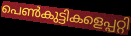
പെൺകുട്ടികളെപ്പറ്റി